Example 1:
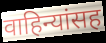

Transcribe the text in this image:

वाहिन्यांसह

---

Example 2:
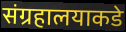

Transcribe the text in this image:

संग्रहालयाकडे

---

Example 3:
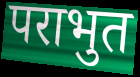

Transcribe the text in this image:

पराभुत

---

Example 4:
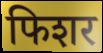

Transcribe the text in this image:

फिशर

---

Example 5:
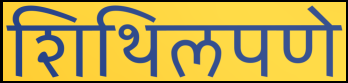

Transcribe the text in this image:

शिथिलपणे